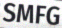
SMFG